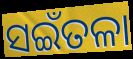
ସଇଁତଳା